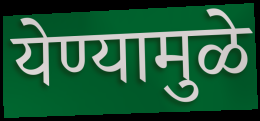
येण्यामुळे